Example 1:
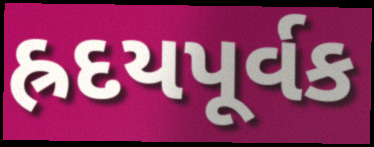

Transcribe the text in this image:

હ્રદયપૂર્વક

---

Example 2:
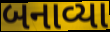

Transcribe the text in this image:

બનાવ્યા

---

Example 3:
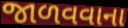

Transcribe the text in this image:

જાળવવાના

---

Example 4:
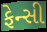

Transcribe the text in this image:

ફેન્સી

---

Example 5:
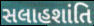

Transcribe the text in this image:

સલાહશાંતિ